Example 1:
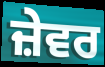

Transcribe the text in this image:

ਜ਼ੇਵਰ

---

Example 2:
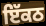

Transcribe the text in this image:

ਇੱਕਠ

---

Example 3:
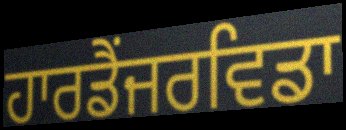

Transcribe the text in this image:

ਹਾਰਡੈਂਜਰਵਿਡਾ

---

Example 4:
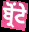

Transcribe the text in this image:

ਬ੍ਰੋਂਟੇ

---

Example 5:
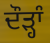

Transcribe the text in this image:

ਦੌੜ੍ਹਾੰ